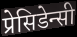
प्रेसिडेन्सी